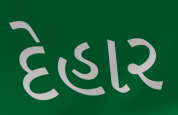
દેહાર